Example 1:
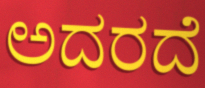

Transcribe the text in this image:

ಅದರದೆ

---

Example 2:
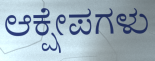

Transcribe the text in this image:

ಆಕ್ಷೇಪಗಳು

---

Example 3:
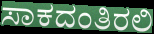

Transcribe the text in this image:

ಸಾಕದಂತಿರಲಿ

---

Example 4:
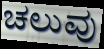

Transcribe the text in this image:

ಚಲುವು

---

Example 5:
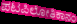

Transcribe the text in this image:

ಪಟಪಿಲೋತಿಕಾನಂ